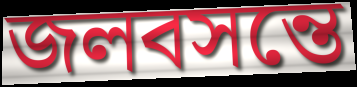
জলবসন্তে